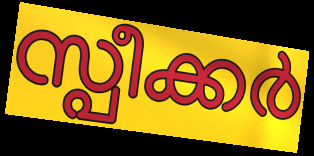
സ്പീക്കർ